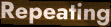
Repeating